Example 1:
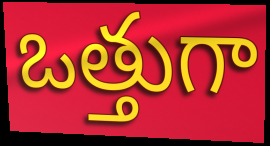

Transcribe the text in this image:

ఒత్తుగా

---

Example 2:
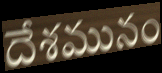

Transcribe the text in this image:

దేశమునం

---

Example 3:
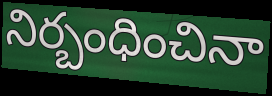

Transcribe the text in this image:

నిర్బంధించినా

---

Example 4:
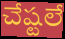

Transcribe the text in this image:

చేష్టలే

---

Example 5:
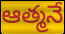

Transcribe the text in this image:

ఆత్మనే